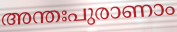
അന്തഃപുരാണാം